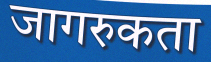
जागरुकता